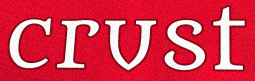
crust